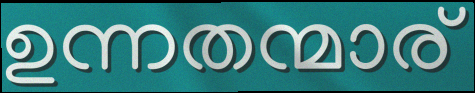
ഉന്നതന്മാര്